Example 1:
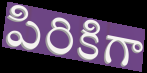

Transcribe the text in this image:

పిరికిగా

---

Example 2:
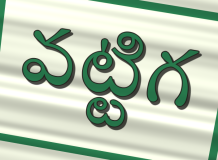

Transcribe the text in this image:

వట్టిగ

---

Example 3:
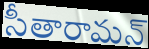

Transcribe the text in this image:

సీతారామన్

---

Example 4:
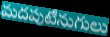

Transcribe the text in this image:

మదపుటేనుగులు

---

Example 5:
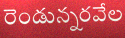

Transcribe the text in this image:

రెండున్నరవేల